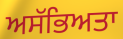
ਅਸੱਭਿਅਤਾ